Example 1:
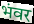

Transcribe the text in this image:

भंवर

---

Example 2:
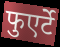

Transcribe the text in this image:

फुएर्टे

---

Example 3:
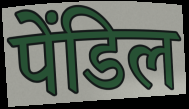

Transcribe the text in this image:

पेंडिल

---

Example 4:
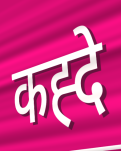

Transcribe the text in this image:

कह्दे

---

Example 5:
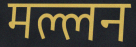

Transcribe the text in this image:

मल्लन